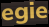
egie